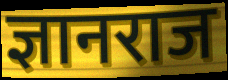
ज्ञानराज